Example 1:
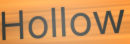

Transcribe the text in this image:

Hollow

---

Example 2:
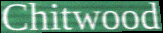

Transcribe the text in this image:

Chitwood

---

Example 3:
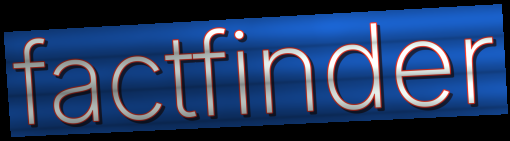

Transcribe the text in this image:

factfinder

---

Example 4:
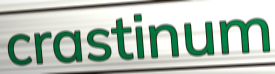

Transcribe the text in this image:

crastinum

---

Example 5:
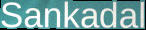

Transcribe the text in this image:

Sankadal